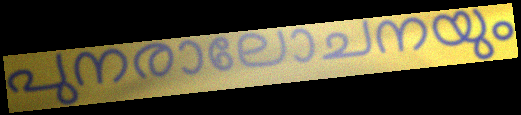
പുനരാലോചനയും